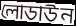
লোডাউন